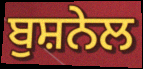
ਬੁਸ਼ਨੇਲ